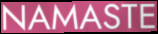
NAMASTE